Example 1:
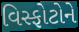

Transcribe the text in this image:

વિસ્ફોટોને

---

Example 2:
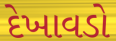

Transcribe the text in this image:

દેખાવડો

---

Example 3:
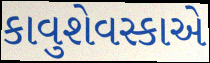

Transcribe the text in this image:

કાવુશેવસ્કાએ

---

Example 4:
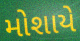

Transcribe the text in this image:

મોશાયે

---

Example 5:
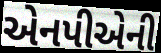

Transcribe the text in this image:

એનપીએની